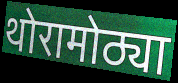
थोरामोठ्या